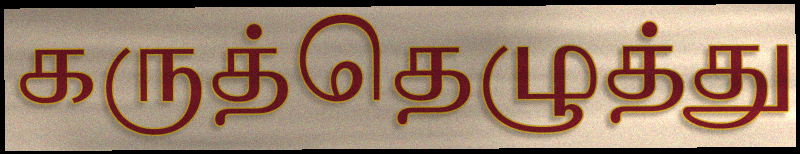
கருத்தெழுத்து